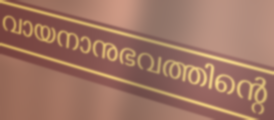
വായനാനുഭവത്തിന്റെ